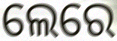
ଲେରେ